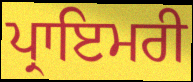
ਪ੍ਰਾਇਮਰੀ